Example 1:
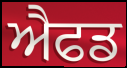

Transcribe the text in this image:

ਐਫਡ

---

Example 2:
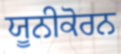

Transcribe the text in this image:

ਯੂਨੀਕੋਰਨ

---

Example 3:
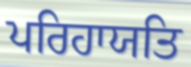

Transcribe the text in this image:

ਪਰਿਹਾਯਤਿ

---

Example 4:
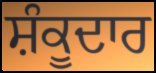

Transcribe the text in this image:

ਸ਼ੰਕੂਦਾਰ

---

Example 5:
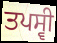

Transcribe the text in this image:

ਤਪਸ੍ਵੀ